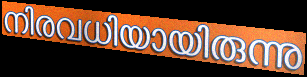
നിരവധിയായിരുന്നു